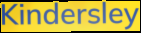
Kindersley